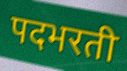
पदभरती